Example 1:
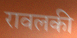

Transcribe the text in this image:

रावलकी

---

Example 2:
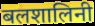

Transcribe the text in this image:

बलशालिनी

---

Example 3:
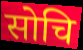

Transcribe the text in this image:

सोचि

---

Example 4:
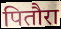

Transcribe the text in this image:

पितौरा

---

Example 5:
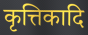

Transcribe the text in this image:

कृत्तिकादि